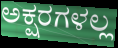
ಅಕ್ಷರಗಳಲ್ಲ